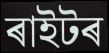
ৰাইটৰ